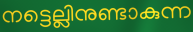
നട്ടെല്ലിനുണ്ടാകുന്ന